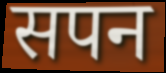
सपन